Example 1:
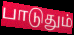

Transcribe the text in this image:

பாடுதும்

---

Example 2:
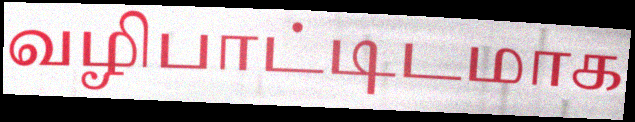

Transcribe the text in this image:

வழிபாட்டிடமாக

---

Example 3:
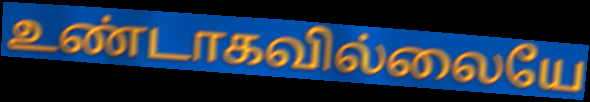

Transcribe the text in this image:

உண்டாகவில்லையே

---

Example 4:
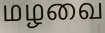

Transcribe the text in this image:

மழவை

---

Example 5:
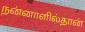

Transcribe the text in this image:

நன்னாளில்தான்